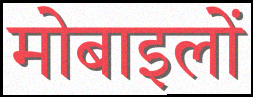
मोबाइलों